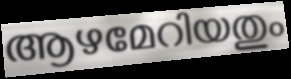
ആഴമേറിയതും